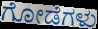
ಗೋಡೆಗಳು